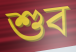
শুব